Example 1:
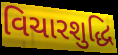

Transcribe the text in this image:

વિચારશુદ્ધિ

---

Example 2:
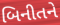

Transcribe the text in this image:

બિનીતને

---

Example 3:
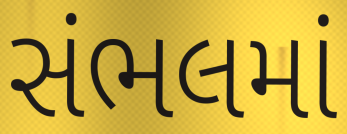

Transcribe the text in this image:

સંભલમાં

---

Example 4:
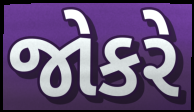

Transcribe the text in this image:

જોકરે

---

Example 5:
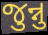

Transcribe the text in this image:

જુન્નુ